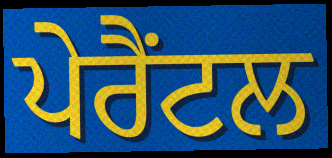
ਪੇਰੈਂਟਲ